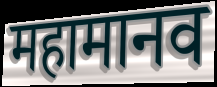
महामानव